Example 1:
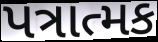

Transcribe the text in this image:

પત્રાત્મક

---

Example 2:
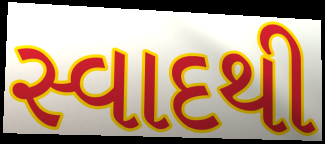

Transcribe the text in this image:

સ્વાદથી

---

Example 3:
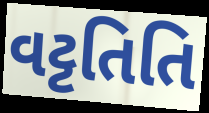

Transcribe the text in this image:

વટ્ટતિતિ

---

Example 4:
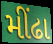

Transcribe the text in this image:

મીંઢા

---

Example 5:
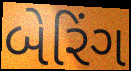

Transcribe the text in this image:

બેરિંગ